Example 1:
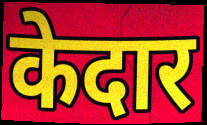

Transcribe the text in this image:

केदार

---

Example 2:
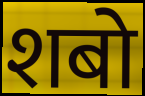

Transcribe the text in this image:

शबो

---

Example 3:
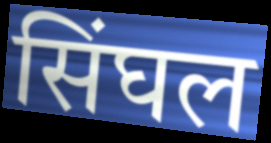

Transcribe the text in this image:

सिंघल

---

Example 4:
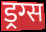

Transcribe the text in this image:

ड्रग्‍स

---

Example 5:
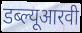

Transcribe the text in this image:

डब्ल्यूआरवी